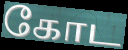
கோட